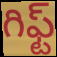
గిఫ్ట్